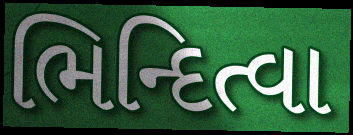
ભિન્દિત્વા